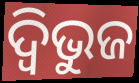
ଦ୍ଵିଭୁଜ